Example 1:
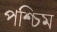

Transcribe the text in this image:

পশ্চিম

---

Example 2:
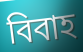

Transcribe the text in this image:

বিবাহ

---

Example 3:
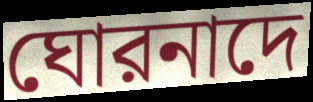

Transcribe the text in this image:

ঘোরনাদে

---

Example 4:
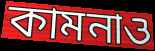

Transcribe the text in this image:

কামনাও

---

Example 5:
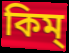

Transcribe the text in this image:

কিম্